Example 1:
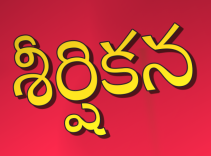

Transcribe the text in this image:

శీర్షికన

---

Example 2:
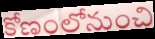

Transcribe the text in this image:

కోణంలోనుంచి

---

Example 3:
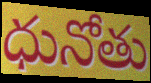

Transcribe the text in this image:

ధునోతు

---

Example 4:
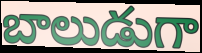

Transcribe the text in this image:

బాలుడుగా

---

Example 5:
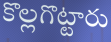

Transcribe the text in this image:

కొల్లగొట్టారు